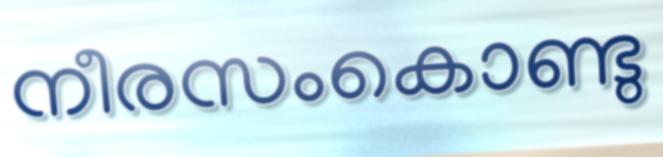
നീരസംകൊണ്ടു